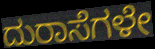
ದುರಾಸೆಗಳೇ